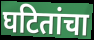
घटितांचा